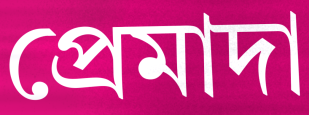
প্ৰেমাদা